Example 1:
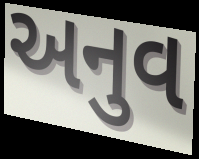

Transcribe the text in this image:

અનુવ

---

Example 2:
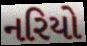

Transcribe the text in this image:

નરિયો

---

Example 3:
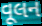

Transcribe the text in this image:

વૂલન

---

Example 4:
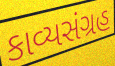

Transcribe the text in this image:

કાવ્યસંગ્રહ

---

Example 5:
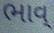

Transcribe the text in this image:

ભાવ્